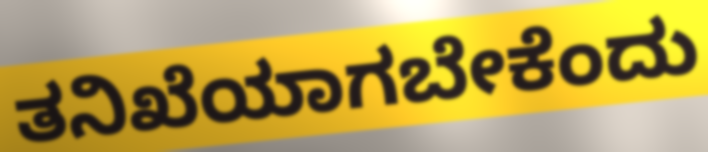
ತನಿಖೆಯಾಗಬೇಕೆಂದು